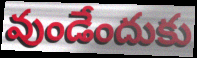
వుండేందుకు